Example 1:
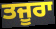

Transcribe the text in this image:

ਤਜੂਰਾ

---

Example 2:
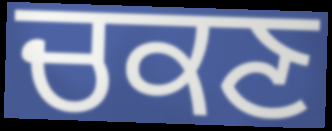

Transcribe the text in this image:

ਚਕਣ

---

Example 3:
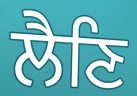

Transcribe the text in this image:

ਲੈਣਿ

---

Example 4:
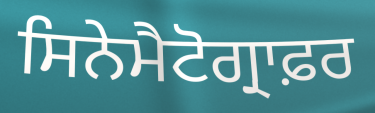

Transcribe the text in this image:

ਸਿਨੇਮੈਟੋਗ੍ਰਾਫ਼ਰ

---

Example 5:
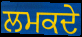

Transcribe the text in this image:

ਲਮਕਦੇ